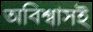
অবিশ্বাসই